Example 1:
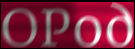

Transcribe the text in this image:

OPod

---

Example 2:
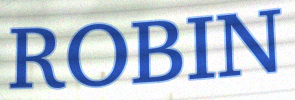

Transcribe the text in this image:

ROBIN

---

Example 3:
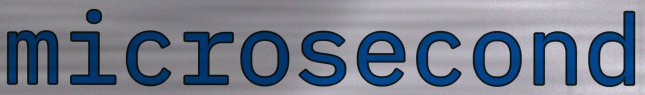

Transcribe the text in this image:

microsecond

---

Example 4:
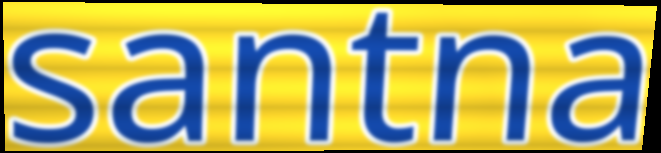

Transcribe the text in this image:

santna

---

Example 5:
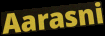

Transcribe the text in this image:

Aarasni